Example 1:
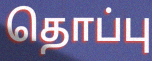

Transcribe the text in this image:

தொப்பு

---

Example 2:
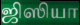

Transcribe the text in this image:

ஜிஸியா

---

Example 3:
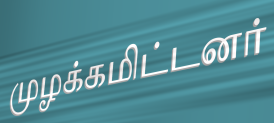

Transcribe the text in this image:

முழக்கமிட்டனர்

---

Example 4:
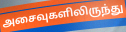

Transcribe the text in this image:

அசைவுகளிலிருந்து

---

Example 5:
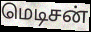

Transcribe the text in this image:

மெடிசன்